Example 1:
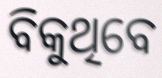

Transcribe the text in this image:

ବିକୁଥିବେ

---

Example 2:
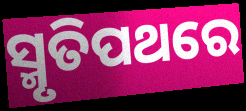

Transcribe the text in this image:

ସ୍ମୃତିପଥରେ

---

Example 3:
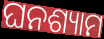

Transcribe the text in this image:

ଘନଶ୍ୟାମ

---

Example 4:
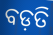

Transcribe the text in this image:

ବଡ଼ତି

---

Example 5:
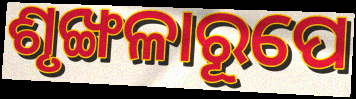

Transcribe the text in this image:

ଶୃଙ୍ଖଳାରୂପେ